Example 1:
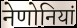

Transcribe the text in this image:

नेणोनियां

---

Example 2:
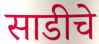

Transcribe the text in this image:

साडीचे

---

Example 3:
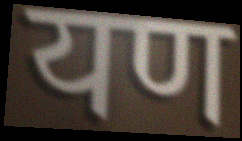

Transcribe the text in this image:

यण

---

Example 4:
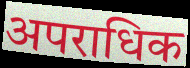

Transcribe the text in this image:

अपराधिक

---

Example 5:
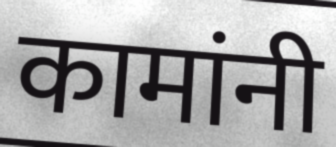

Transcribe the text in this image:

कामांनी